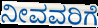
ನೀವವರಿಗೆ